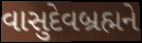
વાસુદેવબ્રહ્મને